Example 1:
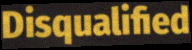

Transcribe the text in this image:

Disqualified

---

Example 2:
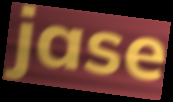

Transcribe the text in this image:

jase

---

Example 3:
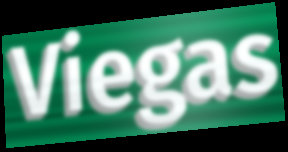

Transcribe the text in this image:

Viegas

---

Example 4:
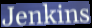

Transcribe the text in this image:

Jenkins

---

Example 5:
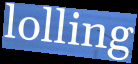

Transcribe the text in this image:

lolling